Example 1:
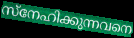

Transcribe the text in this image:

സ്നേഹിക്കുന്നവനെ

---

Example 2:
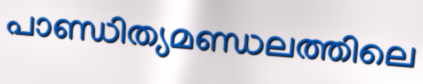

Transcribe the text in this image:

പാണ്ഡിത്യമണ്ഡലത്തിലെ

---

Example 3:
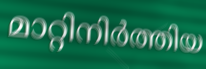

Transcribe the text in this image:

മാറ്റിനിർത്തിയ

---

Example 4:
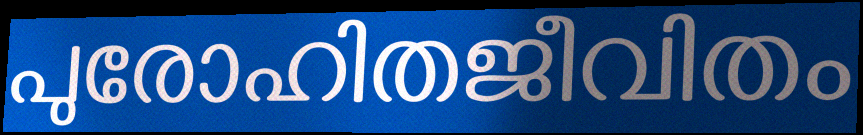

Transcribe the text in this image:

പുരോഹിതജീവിതം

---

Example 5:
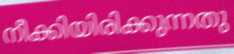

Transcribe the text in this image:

നീക്കിയിരിക്കുന്നതു